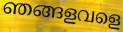
ഞങ്ങളവളെ